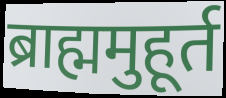
ब्राह्ममुहूर्त